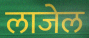
लाजेल